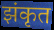
झंकृत